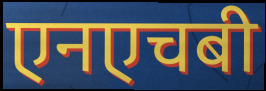
एनएचबी